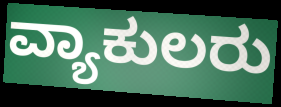
ವ್ಯಾಕುಲರು